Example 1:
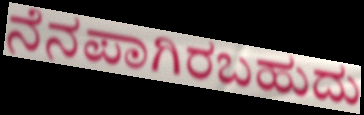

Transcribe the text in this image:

ನೆನಪಾಗಿರಬಹುದು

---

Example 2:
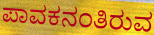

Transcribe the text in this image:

ಪಾವಕನಂತಿರುವ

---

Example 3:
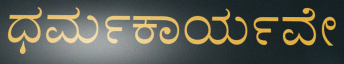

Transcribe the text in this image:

ಧರ್ಮಕಾರ್ಯವೇ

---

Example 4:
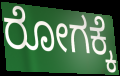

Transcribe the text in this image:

ರೋಗಕ್ಕೆ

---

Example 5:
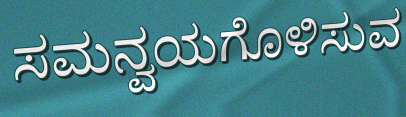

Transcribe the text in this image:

ಸಮನ್ವಯಗೊಳಿಸುವ